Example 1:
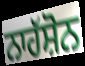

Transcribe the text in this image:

ਨਾਹੱਸ਼ੋਨ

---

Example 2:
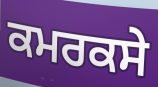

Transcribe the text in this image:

ਕਮਰਕਸੇ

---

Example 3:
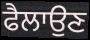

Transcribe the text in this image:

ਫੈਲਾਉਣ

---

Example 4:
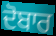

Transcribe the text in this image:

ਦੋਬਾਰ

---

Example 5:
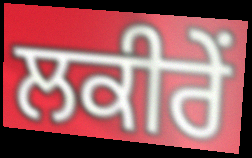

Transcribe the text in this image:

ਲਕੀਰੇਂ